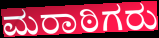
ಮರಾಠಿಗರು